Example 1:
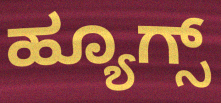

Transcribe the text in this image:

ಹ್ಯೂಗ್ಸ್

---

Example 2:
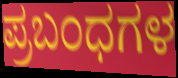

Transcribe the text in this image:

ಪ್ರಬಂಧಗಳ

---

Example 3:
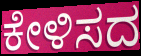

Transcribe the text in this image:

ಕೇಳಿಸದ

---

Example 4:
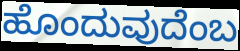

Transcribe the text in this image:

ಹೊಂದುವುದೆಂಬ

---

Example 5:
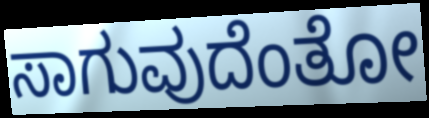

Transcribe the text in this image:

ಸಾಗುವುದೆಂತೋ